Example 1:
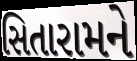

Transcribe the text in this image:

સિતારામને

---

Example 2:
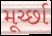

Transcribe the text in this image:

મૂર્ચ્છા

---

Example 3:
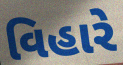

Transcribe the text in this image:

વિહારે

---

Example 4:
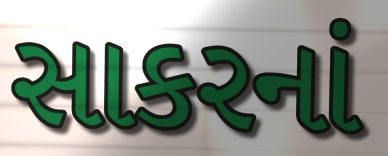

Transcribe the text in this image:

સાકરનાં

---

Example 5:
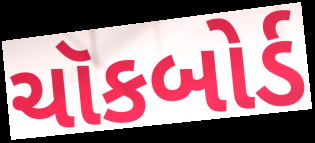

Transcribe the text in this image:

ચૉકબોર્ડ